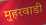
मुहरवाडी